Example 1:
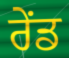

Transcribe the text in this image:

ਰੇਂਡ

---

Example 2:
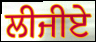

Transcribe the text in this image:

ਲੀਜੀਏ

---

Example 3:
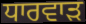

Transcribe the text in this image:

ਧਾਰਵਾੜ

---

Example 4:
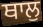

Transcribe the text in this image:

ਥਾਲੁ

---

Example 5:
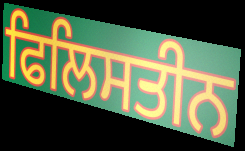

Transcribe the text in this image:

ਫਿਲਿਸਤੀਨ